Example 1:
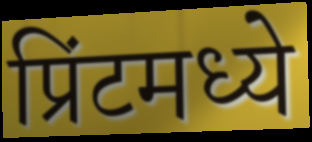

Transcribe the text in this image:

प्रिंटमध्ये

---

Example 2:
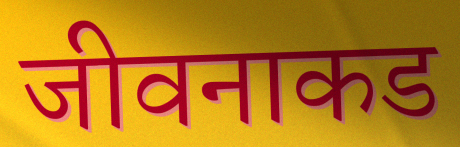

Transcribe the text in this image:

जीवनाकड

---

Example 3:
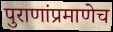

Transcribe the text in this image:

पुराणांप्रमाणेच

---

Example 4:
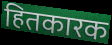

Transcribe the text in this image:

हितकारक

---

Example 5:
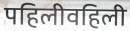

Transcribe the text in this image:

पहिलीवहिली